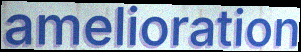
amelioration